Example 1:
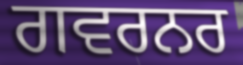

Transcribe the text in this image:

ਗਵਰਨਰ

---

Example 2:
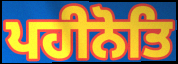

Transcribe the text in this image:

ਪਹੀਨੋਤਿ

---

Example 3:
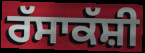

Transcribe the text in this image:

ਰੱਸਾਕੱਸ਼ੀ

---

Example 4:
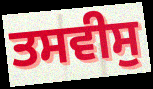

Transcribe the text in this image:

ਤਸਵੀਸੁ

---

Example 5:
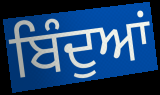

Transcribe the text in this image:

ਬਿੰਦੁਆਂ